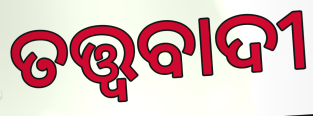
ତତ୍ତ୍ଵବାଦୀ